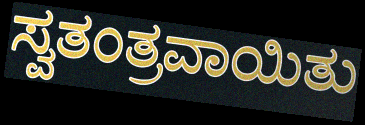
ಸ್ವತಂತ್ರವಾಯಿತು